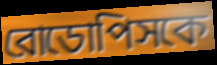
রোডোপিসকে